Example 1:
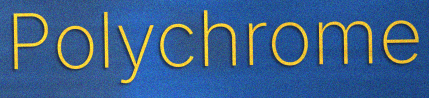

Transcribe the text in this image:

Polychrome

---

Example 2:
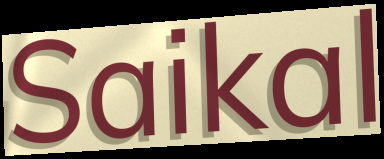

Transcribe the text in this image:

Saikal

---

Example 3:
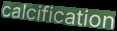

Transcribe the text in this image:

calcification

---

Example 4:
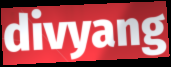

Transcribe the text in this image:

divyang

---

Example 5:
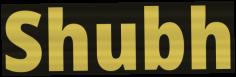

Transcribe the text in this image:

Shubh